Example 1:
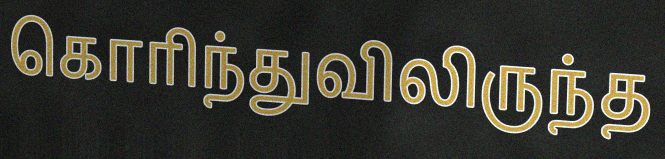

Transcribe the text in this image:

கொரிந்துவிலிருந்த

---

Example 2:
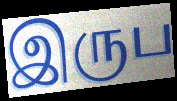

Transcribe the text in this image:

இருப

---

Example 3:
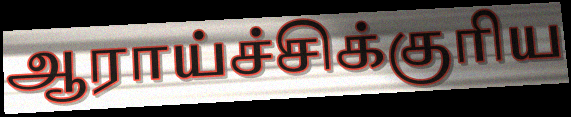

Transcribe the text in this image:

ஆராய்ச்சிக்குரிய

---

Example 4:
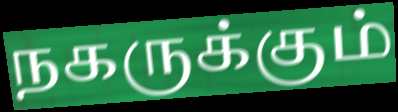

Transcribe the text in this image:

நகருக்கும்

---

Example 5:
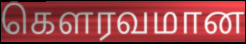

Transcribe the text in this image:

கெளரவமான